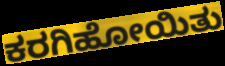
ಕರಗಿಹೋಯಿತು